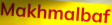
Makhmalbaf